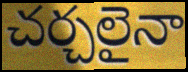
చర్చలైనా